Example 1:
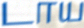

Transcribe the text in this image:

டாய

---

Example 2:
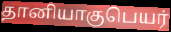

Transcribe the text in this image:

தானியாகுபெயர்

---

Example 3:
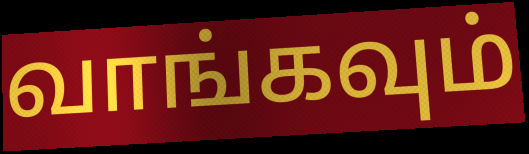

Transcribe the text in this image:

வாங்கவும்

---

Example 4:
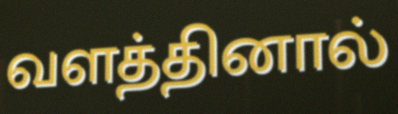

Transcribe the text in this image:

வளத்தினால்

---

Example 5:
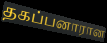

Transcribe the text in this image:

தகப்பனாரான